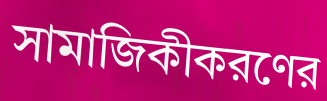
সামাজিকীকরণের